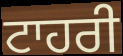
ਟਾਹਰੀ